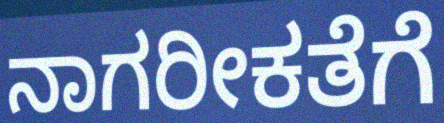
ನಾಗರೀಕತೆಗೆ